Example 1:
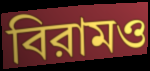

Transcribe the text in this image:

বিরামও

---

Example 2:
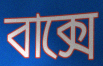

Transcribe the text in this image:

বাক্সে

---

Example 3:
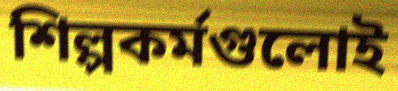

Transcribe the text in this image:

শিল্পকর্মগুলোই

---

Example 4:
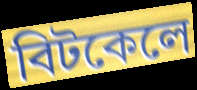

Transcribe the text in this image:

বিটকেলে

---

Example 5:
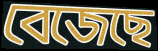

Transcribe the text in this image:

বেজেছে